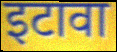
इटावा